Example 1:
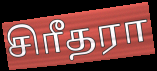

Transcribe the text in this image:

சிரீதரா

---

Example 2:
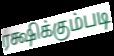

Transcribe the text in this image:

ரக்ஷிக்கும்படி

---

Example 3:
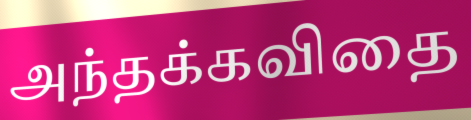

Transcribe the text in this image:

அந்தக்கவிதை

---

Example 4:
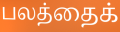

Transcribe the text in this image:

பலத்தைக்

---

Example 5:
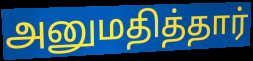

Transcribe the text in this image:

அனுமதித்தார்